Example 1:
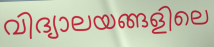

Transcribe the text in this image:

വിദ്യാലയങ്ങളിലെ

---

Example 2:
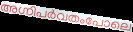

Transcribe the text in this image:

അഗ്നിപർവതംപോലെ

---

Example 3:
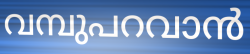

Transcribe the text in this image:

വമ്പുപറവാൻ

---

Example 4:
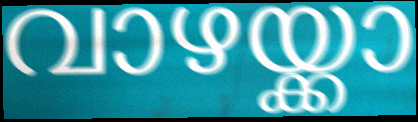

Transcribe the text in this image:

വാഴയ്ക്കാ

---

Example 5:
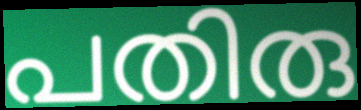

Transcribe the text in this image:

പതിരു